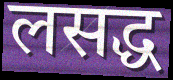
लसद्ध